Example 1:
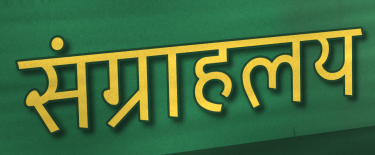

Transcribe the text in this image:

संग्राहलय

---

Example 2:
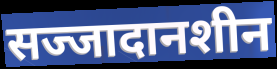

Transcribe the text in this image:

सज्जादानशीन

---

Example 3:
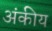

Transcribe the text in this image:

अंकीय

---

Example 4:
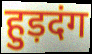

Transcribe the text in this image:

हुड़दंग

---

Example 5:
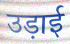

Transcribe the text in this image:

उड़ाई